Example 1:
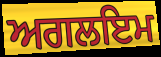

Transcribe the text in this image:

ਅਗਲਇਮ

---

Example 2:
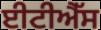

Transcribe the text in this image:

ਈਟੀਐੱਸ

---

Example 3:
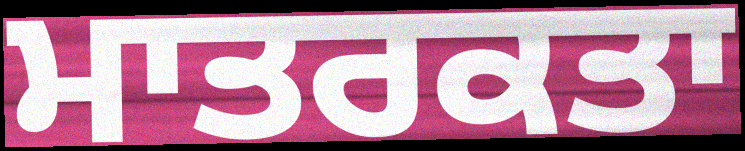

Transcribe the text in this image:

ਮਾਤਰਕਤਾ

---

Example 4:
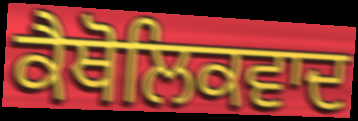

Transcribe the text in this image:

ਕੈਥੋਲਿਕਵਾਦ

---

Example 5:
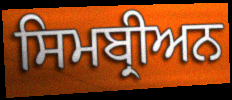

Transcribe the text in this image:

ਸਿਮਬ੍ਰੀਅਨ